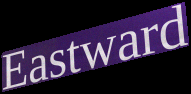
Eastward